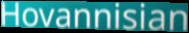
Hovannisian